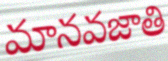
మానవజాతి